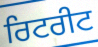
ਰਿਟਰੀਟ